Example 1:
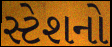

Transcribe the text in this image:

સ્ટેશનો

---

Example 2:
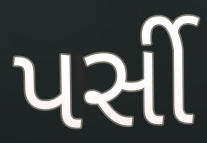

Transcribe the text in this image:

પર્સી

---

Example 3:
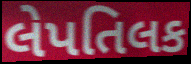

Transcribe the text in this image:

લેપતિલક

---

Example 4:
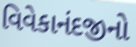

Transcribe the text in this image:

વિવેકાનંદજીનો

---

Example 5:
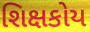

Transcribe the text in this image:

શિક્ષકોય